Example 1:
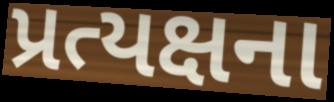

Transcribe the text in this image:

પ્રત્યક્ષના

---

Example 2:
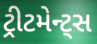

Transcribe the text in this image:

ટ્રીટમેન્ટ્સ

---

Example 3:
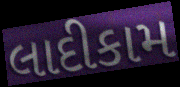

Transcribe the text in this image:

લાદીકામ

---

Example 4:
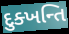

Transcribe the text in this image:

દુક્ખન્તિ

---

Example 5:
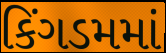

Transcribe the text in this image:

કિંગડમમાં